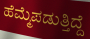
ಹೆಮ್ಮೆಪಡುತ್ತಿದ್ದೆ